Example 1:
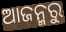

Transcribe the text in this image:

ଆଜନ୍ମରୁ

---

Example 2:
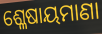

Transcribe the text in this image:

ଶ୍ଳେଷାୟମାଣା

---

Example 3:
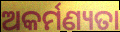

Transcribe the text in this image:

ଅକର୍ମଣ୍ୟତା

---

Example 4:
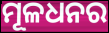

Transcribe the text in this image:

ମୂଳଧନର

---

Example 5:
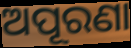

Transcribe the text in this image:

ଅପୂରଣା